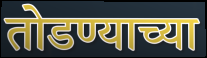
तोडण्याच्या